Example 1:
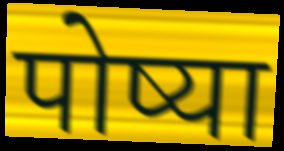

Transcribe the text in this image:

पोष्या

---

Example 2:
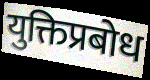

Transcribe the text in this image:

युक्तिप्रबोध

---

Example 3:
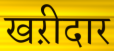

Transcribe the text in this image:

खऱीदार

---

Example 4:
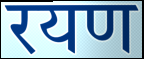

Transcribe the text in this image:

रयण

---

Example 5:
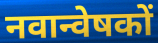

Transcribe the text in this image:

नवान्वेषकों